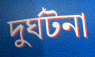
দুৰ্ঘটনা